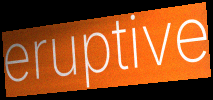
eruptive